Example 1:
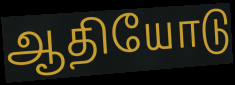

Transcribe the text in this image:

ஆதியோடு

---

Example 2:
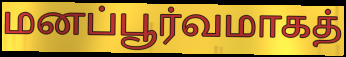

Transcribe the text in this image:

மனப்பூர்வமாகத்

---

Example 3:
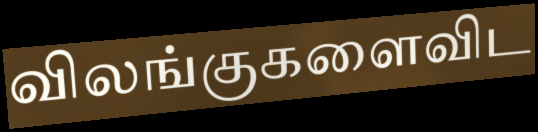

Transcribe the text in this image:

விலங்குகளைவிட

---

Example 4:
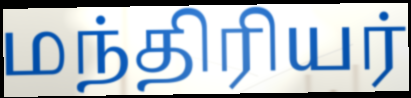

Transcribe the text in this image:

மந்திரியர்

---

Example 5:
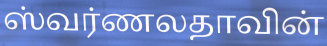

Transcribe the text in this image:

ஸ்வர்ணலதாவின்